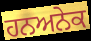
ਹਨਅਨੇਕ